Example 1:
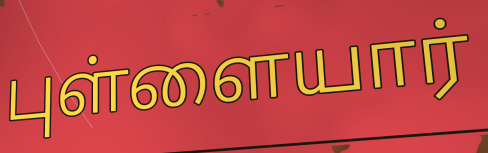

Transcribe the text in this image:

புள்ளையார்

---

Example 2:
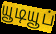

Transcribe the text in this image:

யூடியூப்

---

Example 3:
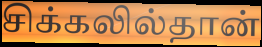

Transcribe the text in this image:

சிக்கலில்தான்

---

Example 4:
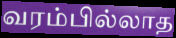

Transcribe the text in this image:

வரம்பில்லாத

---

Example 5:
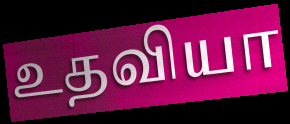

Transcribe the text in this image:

உதவியா